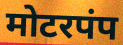
मोटरपंप